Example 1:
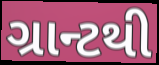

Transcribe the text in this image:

ગ્રાન્ટથી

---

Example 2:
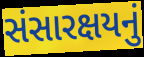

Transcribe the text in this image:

સંસારક્ષયનું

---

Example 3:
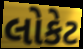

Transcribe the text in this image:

લોકેટ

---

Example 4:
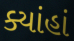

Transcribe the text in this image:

ક્યાંહાં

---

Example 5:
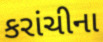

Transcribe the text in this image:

કરાંચીના